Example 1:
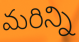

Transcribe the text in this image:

మరిన్ని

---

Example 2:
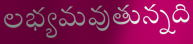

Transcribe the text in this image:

లభ్యమవుతున్నది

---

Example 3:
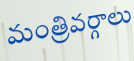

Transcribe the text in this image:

మంత్రివర్గాలు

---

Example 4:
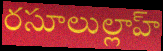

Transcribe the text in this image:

రసూలుల్లాహ్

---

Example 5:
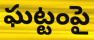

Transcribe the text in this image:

ఘట్టంపై